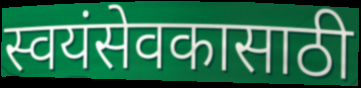
स्वयंसेवकासाठी